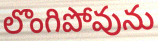
లొంగిపోవును